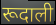
रूदाली